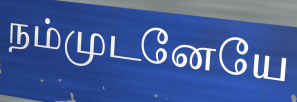
நம்முடனேயே